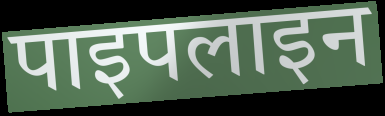
पाइपलाइन